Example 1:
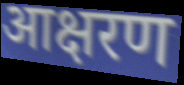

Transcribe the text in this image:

आक्षरण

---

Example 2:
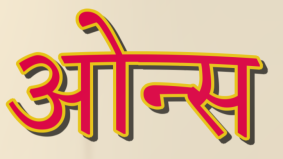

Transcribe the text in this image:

ओन्स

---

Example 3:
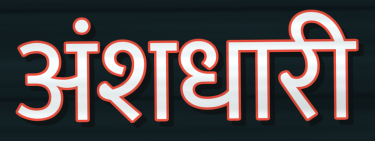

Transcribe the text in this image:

अंशधारी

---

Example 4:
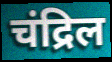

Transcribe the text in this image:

चंद्रिल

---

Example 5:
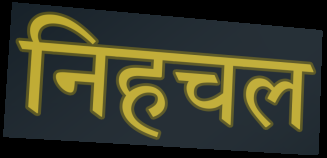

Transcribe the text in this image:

निहचल